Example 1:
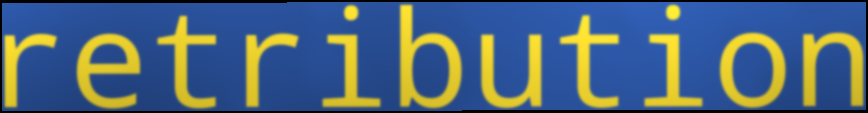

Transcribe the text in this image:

retribution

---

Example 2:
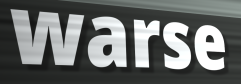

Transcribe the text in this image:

warse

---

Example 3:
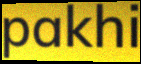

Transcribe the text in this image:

pakhi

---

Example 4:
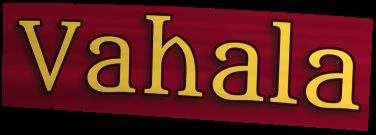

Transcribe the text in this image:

Vahala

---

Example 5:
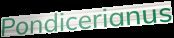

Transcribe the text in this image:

Pondicerianus